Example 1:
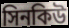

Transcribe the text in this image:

সিনকিউ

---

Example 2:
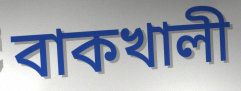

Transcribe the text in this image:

বাকখালী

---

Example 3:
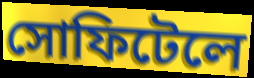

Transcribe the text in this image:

সোফিটেলে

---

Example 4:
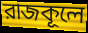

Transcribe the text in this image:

রাজকূলে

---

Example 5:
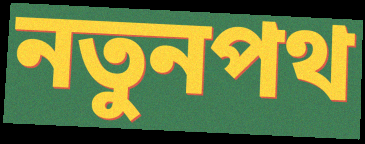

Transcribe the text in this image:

নতুনপথ